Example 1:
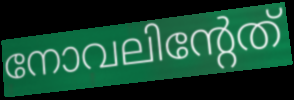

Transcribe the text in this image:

നോവലിന്റേത്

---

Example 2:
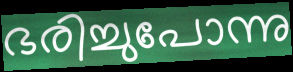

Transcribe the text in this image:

ഭരിച്ചുപോന്നു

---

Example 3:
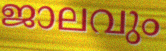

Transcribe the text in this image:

ജാലവും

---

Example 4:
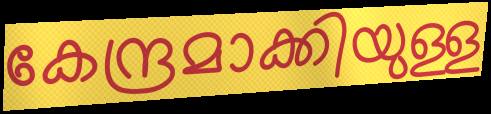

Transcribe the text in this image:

കേന്ദ്രമാക്കിയുള്ള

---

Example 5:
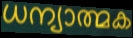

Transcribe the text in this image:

ധന്യാത്മക